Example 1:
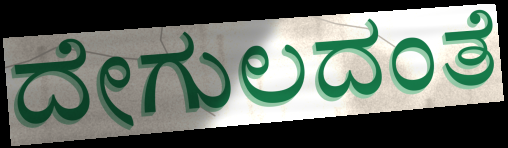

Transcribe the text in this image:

ದೇಗುಲದಂತೆ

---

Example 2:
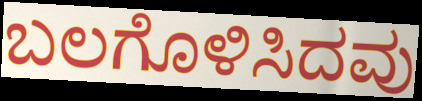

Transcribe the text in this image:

ಬಲಗೊಳಿಸಿದವು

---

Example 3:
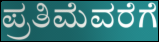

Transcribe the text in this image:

ಪ್ರತಿಮೆವರೆಗೆ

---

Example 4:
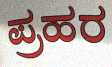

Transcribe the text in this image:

ಪ್ರಹರ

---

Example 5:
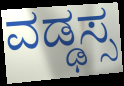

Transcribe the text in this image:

ವಡ್ಢಸ್ಸ